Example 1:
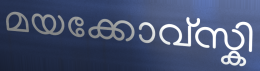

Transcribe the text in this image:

മയക്കോവ്സ്കി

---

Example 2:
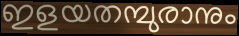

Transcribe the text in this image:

ഇളയതമ്പുരാനും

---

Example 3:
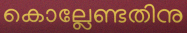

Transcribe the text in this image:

കൊല്ലേണ്ടതിനു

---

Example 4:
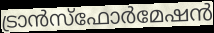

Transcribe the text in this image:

ട്രാൻസ്ഫോർമേഷൻ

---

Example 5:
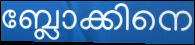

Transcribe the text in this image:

ബ്ലോക്കിനെ